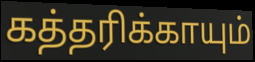
கத்தரிக்காயும்